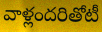
వాళ్లందరితోటీ